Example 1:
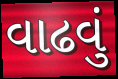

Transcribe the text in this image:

વાઢવું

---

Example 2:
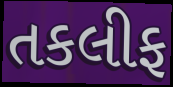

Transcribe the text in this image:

તકલીફ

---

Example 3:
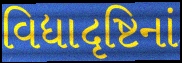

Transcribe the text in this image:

વિદ્યાદૃષ્ટિનાં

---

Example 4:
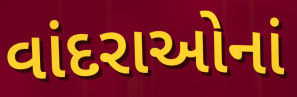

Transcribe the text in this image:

વાંદરાઓનાં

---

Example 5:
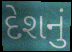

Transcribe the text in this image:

દેશનું